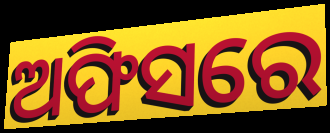
ଅଫିସରେ